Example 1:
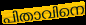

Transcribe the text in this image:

പിതാവിനെ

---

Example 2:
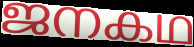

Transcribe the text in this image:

ജനകഥ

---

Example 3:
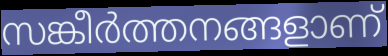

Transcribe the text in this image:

സങ്കീർത്തനങ്ങളാണ്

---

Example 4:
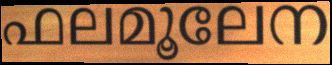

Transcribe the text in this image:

ഫലമൂലേന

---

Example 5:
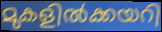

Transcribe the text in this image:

മുകളിൽക്കയറി